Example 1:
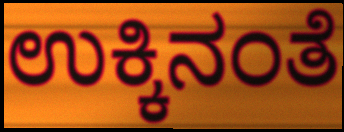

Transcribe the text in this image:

ಉಕ್ಕಿನಂತೆ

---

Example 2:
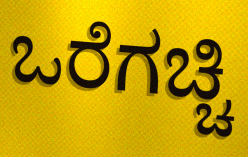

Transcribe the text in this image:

ಒರೆಗಚ್ಚಿ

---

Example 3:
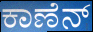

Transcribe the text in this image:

ಕಾಣೆನ್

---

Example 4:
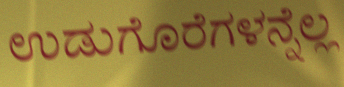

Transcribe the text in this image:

ಉಡುಗೊರೆಗಳನ್ನೆಲ್ಲ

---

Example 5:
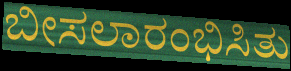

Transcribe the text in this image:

ಬೀಸಲಾರಂಭಿಸಿತು